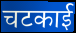
चटकाई